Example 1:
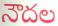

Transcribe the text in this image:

నౌదల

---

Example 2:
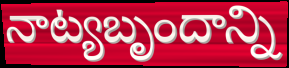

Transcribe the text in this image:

నాట్యబృందాన్ని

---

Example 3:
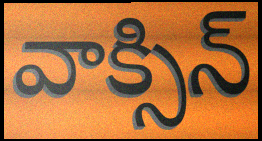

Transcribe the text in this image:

వాక్సిన్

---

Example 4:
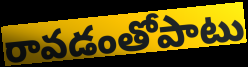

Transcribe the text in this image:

రావడంతోపాటు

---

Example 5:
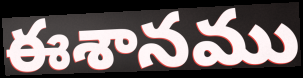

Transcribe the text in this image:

ఈశానము